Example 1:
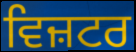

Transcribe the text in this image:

ਵਿਜ਼ਟਰ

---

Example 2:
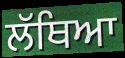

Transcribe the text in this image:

ਲੱਥਿਆ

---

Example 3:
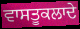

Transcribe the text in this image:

ਵਾਸਤੂਕਲਾਦੇ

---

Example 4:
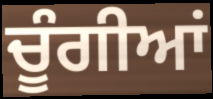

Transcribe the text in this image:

ਚੂੰਗੀਆਂ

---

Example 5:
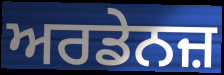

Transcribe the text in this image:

ਅਰਡੇਨਜ਼